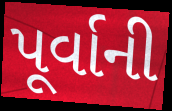
પૂર્વાની